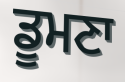
ਡੂਮਣਾ